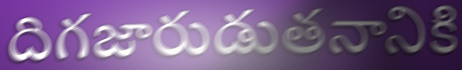
దిగజారుడుతనానికి